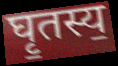
घृ॒तस्य॒